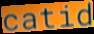
catid